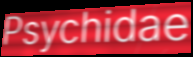
Psychidae